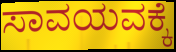
ಸಾವಯವಕ್ಕೆ